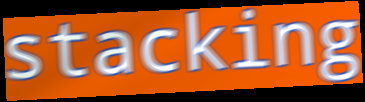
stacking